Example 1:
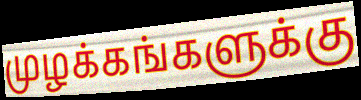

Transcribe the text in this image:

முழக்கங்களுக்கு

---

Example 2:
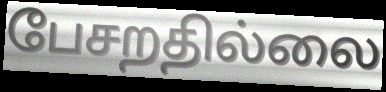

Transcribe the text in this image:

பேசறதில்லை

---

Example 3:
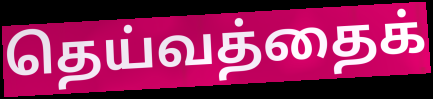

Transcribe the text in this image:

தெய்வத்தைக்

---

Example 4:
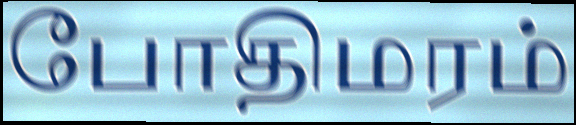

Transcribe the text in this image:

போதிமரம்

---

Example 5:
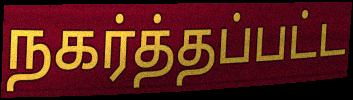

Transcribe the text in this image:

நகர்த்தப்பட்ட